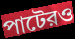
পাটেরও